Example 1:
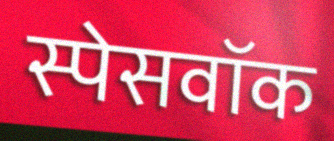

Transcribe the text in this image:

स्पेसवॉक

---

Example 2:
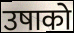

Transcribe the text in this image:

उषाको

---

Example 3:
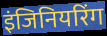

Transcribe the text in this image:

इंजिनियरिंग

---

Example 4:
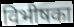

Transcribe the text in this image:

विभीषका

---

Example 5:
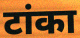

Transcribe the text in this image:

टांका